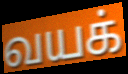
வயக்